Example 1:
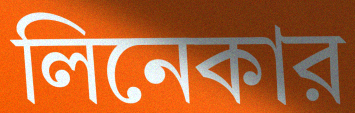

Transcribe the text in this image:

লিনেকার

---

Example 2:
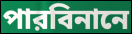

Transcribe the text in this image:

পারবিনানে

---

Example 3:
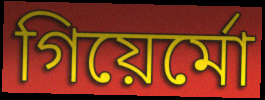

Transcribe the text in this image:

গিয়ের্মো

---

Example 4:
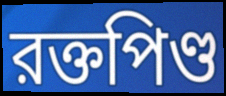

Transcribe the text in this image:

রক্তপিণ্ড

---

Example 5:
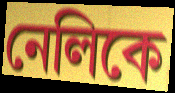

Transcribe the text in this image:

নেলিকে